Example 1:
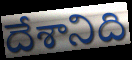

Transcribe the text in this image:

దేశానిది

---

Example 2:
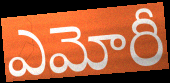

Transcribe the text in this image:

ఎమోరీ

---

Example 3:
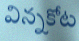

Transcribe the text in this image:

విన్నకోట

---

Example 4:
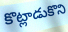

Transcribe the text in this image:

కొట్లాడుకొని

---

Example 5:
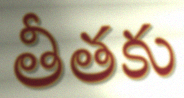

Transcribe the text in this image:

తీతకు